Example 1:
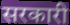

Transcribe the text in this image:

सरकारी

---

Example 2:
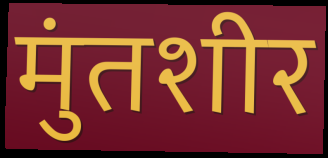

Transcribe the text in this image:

मुंतशीर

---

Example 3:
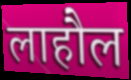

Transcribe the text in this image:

लाहौल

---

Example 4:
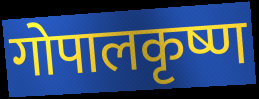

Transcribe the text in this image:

गोपालकृष्‍ण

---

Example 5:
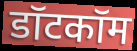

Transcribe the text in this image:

डॉटकॉम